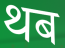
थब